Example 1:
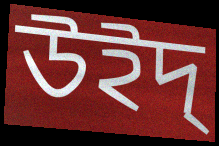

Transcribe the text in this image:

উইদ্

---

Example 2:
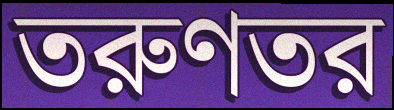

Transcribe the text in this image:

তরুণতর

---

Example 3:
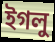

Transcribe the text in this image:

ইগলু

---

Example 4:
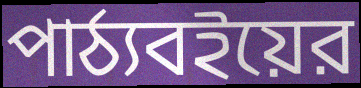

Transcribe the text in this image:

পাঠ্যবইয়ের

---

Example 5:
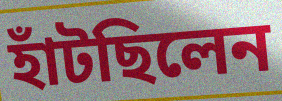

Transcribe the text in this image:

হাঁটছিলেন